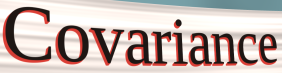
Covariance